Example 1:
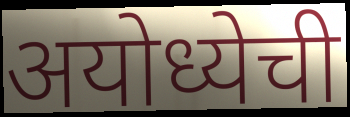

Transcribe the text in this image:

अयोध्येची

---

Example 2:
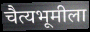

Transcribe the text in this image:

चैत्यभूमीला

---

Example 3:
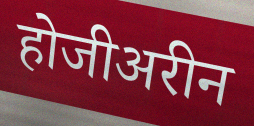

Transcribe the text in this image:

होजीअरीन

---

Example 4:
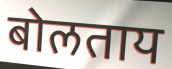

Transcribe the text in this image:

बोलताय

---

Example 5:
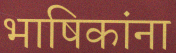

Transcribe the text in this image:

भाषिकांना